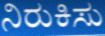
ನಿರುಕಿಸು